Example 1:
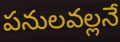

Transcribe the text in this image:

పనులవల్లనే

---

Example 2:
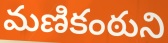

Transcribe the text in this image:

మణికంఠుని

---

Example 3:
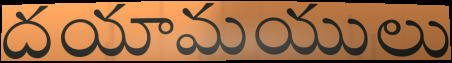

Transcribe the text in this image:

దయామయులు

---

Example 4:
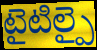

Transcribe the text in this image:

టైటిల్పై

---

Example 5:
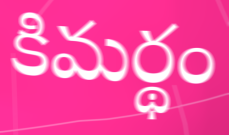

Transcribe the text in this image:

కిమర్థం